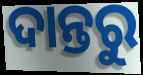
ଦାନ୍ତରୁ